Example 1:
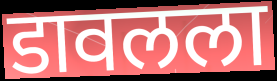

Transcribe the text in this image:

डावलला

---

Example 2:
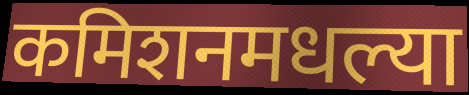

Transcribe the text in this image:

कमिशनमधल्या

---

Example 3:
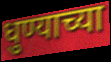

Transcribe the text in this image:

धुण्याच्या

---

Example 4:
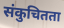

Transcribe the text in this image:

संकुचितता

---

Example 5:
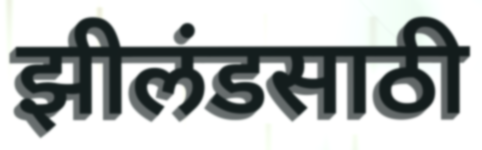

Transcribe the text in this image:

झीलंडसाठी